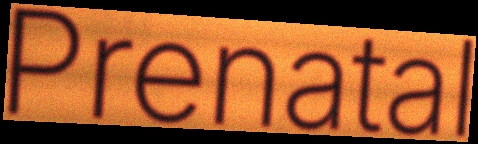
Prenatal